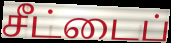
சீட்டைப்